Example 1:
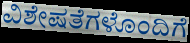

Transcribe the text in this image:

ವಿಶೇಷತೆಗಳೊಂದಿಗೆ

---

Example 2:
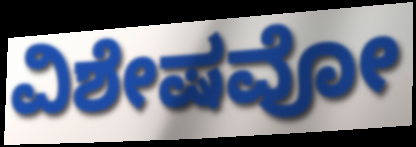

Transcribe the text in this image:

ವಿಶೇಷವೋ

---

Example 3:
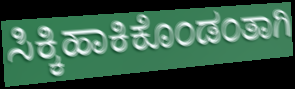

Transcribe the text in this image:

ಸಿಕ್ಕಿಹಾಕಿಕೊಂಡಂತಾಗಿ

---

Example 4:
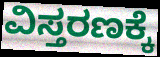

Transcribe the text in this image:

ವಿಸ್ತರಣಕ್ಕೆ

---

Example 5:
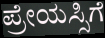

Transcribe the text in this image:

ಪ್ರೇಯಸ್ಸಿಗೆ